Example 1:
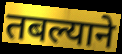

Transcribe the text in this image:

तबल्याने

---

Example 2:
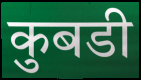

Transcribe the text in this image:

कुबडी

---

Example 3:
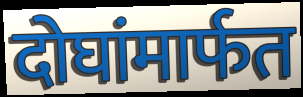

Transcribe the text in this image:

दोघांमार्फत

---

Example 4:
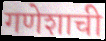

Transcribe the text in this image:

गणेशाची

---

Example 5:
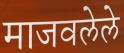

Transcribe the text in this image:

माजवलेले